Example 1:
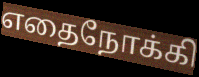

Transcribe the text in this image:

எதைநோக்கி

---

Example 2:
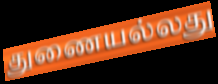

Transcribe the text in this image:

துணையல்லது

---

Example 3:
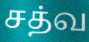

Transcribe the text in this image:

சத்வ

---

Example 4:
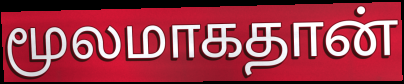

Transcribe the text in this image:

மூலமாகதான்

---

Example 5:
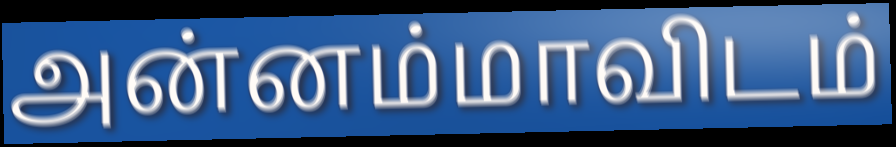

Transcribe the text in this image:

அன்னம்மாவிடம்